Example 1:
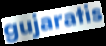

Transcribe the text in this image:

gujaratis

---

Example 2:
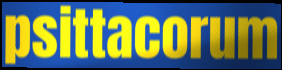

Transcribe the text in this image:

psittacorum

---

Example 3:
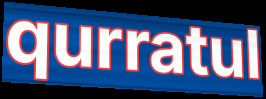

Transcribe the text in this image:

qurratul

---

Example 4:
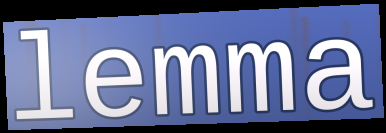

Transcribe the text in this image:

lemma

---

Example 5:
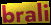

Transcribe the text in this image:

brali